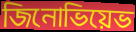
জিনোভিয়েভ